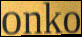
onko